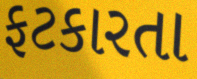
ફટકારતા